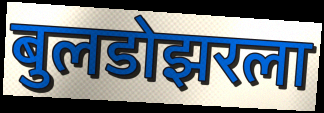
बुलडोझरला